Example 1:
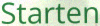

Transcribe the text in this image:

Starten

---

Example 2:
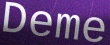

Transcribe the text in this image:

Deme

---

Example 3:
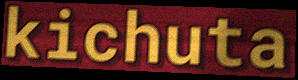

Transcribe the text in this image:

kichuta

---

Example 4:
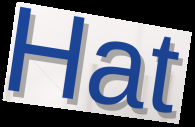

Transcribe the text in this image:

Hat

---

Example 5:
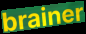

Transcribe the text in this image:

brainer